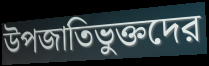
উপজাতিভুক্তদের